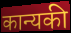
कान्यकी